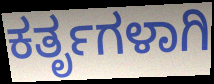
ಕರ್ತೃಗಳಾಗಿ